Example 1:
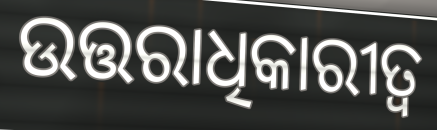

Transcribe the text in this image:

ଉତ୍ତରାଧିକାରୀତ୍ଵ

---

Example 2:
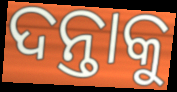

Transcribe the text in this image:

ଦନ୍ତାକୁ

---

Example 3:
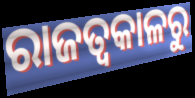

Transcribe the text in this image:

ରାଜତ୍ଵକାଳରୁ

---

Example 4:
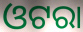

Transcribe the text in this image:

ଓଟରା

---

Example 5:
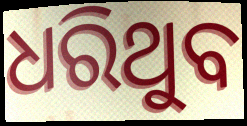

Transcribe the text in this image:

ଧରିଥୁବ